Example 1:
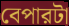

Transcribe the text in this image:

বেপারটা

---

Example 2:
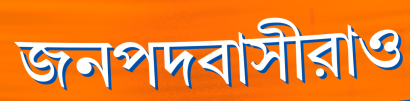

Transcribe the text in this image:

জনপদবাসীরাও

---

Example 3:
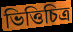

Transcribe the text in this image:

ভিত্তিচিত্র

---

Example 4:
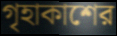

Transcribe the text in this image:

গৃহাকাশের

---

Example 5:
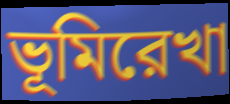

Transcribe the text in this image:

ভূমিরেখা